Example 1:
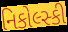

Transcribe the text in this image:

નિકોલ્સ્કી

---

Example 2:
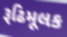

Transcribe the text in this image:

રૂઢિમૂલક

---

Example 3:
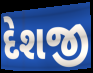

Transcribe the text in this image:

દેશજી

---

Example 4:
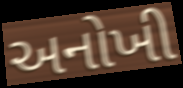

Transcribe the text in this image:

અનોખી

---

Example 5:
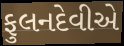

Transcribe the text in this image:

ફુલનદેવીએ